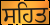
ਸਹਿਤ